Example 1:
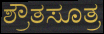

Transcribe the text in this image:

ಶ್ರೌತಸೂತ್ರ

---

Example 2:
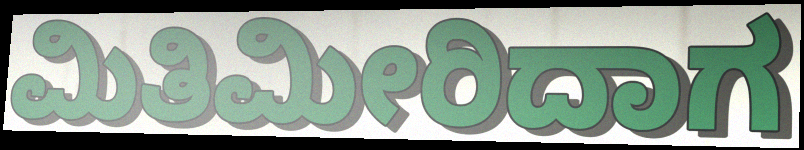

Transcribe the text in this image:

ಮಿತಿಮೀರಿದಾಗ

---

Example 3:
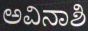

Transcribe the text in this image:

ಅವಿನಾಶಿ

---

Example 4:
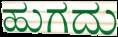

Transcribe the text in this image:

ಹುಗದು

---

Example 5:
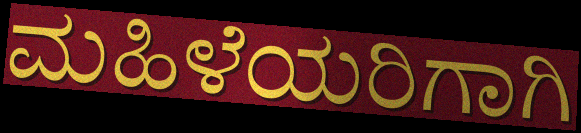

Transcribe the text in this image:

ಮಹಿಳೆಯರಿಗಾಗಿ